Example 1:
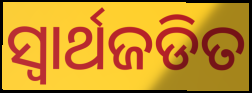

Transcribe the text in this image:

ସ୍ଵାର୍ଥଜଡିତ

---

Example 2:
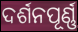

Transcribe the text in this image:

ଦର୍ଶନପୂର୍ଣ୍ଣ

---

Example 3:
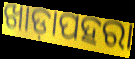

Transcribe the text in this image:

ଖାଡ଼ାପହରା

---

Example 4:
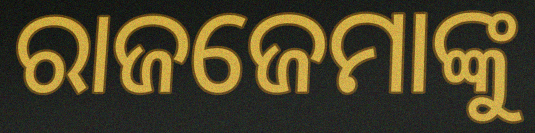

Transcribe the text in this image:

ରାଜଜେମାଙ୍କୁ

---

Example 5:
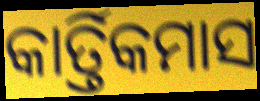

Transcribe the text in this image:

କାର୍ତ୍ତିକମାସ